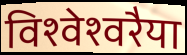
विश्वेश्वरैया